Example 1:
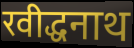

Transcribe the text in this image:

रवीद्धनाथ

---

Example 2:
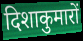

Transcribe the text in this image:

दिशाकुमारों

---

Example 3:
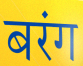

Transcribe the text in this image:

बरंग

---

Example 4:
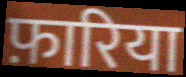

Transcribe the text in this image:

फ़ारिया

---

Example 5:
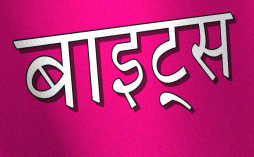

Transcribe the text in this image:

बाइट्स